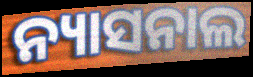
ନ୍ୟାସନାଲ